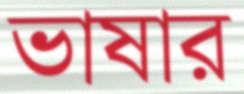
ভাষার